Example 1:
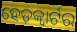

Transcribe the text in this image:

ହେଡ଼କ୍ୱାର୍ଟର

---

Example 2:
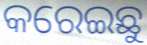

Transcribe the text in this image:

କରେଇଛୁ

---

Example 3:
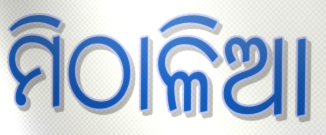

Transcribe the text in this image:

ମିଠାଳିଆ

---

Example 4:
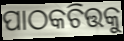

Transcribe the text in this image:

ପାଠକଚିତ୍ତକୁ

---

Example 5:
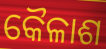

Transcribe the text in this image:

କୈଳାଶ